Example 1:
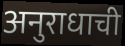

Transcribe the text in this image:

अनुराधाची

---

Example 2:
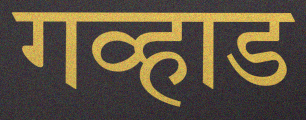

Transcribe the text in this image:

गव्हाड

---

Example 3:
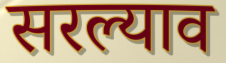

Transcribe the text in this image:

सरल्याव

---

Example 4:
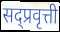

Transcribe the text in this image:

सद्प्रवृत्ती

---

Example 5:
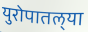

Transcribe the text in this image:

युरोपातल्या